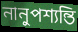
নানুপশ্যন্তি